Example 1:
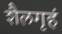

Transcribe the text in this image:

शैलगृहं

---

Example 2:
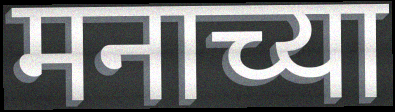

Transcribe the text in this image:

मनाच्‍या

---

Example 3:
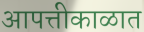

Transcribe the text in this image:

आपत्तीकाळात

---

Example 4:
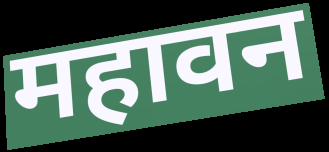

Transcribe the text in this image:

महावन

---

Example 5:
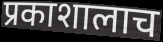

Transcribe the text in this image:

प्रकाशालाच